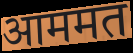
आममत